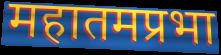
महातमप्रभा